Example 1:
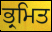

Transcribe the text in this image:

ਭ੍ਰਮਿਤ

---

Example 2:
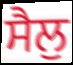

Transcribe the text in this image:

ਸੈਲੁ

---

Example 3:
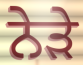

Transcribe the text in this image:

ਨੇਡ਼ੇ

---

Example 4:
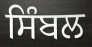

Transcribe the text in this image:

ਸਿੰਬਲ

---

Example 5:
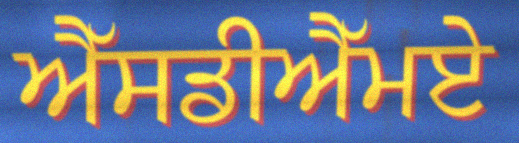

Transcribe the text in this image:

ਐੱਸਡੀਐੱਮਏ